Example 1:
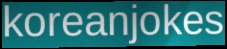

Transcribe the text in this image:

koreanjokes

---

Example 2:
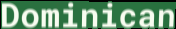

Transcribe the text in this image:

Dominican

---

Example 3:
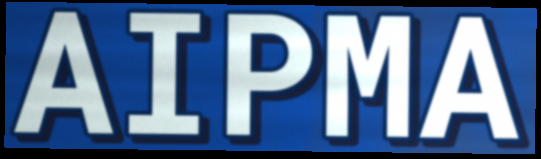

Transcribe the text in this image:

AIPMA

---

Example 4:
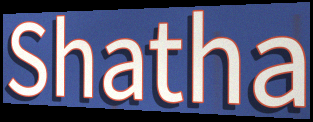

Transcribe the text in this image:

Shatha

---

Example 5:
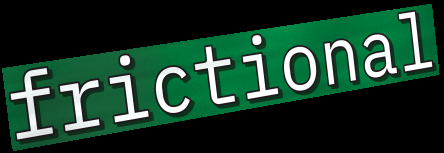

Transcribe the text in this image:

frictional